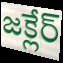
జక్లేర్